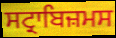
ਸਟ੍ਰਾਬਿਜ਼ਮਸ